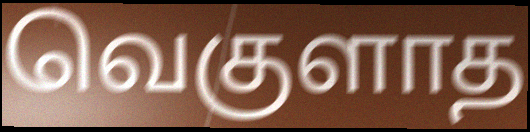
வெகுளாத